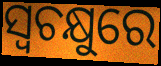
ସ୍ୱଚକ୍ଷୁରେ